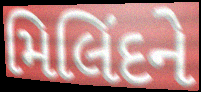
મિલિંદને